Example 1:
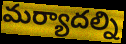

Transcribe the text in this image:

మర్యాదల్ని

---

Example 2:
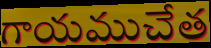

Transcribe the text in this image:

గాయముచేత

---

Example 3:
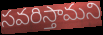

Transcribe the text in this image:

సవరిస్తామని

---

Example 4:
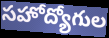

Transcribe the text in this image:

సహోద్యోగుల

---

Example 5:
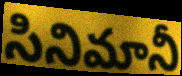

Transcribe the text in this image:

సినిమానీ